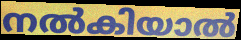
നൽകിയാൽ